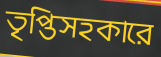
তৃপ্তিসহকারে